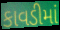
કાવડીમાં